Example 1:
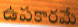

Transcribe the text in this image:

ఉపకారమే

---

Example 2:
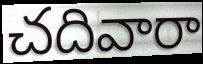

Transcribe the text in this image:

చదివారా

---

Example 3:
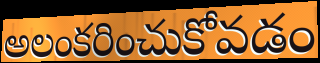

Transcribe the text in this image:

అలంకరించుకోవడం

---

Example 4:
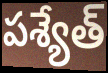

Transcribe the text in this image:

పశ్యేత్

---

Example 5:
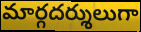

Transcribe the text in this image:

మార్గదర్శులుగా